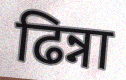
ढिन्ना